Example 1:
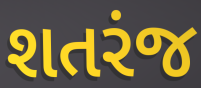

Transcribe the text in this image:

શતરંજ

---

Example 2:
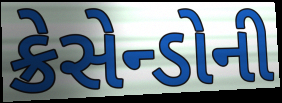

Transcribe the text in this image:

ક્રેસેન્ડોની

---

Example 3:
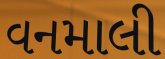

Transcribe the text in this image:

વનમાલી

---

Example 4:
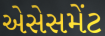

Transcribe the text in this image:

એસેસમેંટ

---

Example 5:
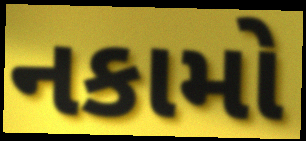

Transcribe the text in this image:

નકામો